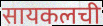
सायकलची